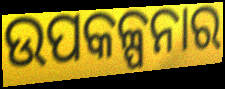
ଉପକଳ୍ପନାର